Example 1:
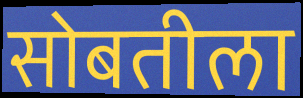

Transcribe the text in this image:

सोबतीला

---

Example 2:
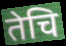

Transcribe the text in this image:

तेचि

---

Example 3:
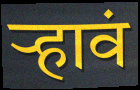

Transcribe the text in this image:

र्‍हावं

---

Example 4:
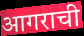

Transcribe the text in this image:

आगराची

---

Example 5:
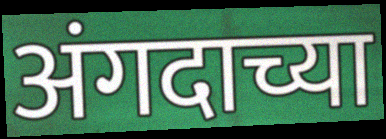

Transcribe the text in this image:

अंगदाच्या